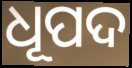
ଧୂପଦ